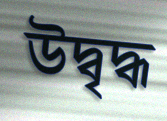
উদ্বৃদ্ধ